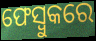
ଫେସ୍ବୁକରେ